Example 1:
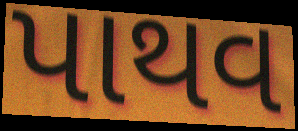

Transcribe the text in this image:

પાથવ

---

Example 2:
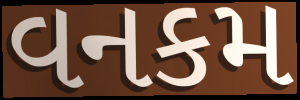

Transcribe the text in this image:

વનકમ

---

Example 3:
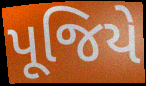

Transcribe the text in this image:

પૂજિયે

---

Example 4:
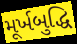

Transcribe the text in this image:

મૂર્ખબુદ્ધિ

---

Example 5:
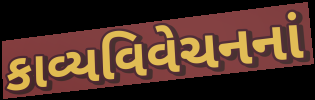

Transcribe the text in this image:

કાવ્યવિવેચનનાં